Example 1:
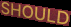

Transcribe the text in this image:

SHOULD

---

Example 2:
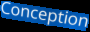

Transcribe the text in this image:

Conception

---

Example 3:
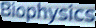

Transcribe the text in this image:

Biophysics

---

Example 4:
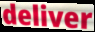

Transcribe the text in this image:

deliver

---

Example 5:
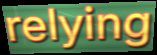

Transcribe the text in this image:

relying